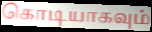
கொடியாகவும்